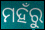
ମହଁରୁ